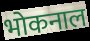
भोकनाल